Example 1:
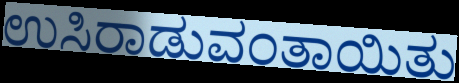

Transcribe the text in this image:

ಉಸಿರಾಡುವಂತಾಯಿತು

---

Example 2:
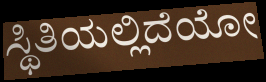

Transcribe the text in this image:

ಸ್ಥಿತಿಯಲ್ಲಿದೆಯೋ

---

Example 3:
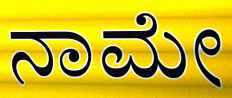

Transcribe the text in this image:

ನಾಮೇ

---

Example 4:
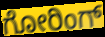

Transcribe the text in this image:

ಗೋರಿಂಗ್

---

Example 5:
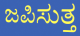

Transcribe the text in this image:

ಜಪಿಸುತ್ತ